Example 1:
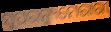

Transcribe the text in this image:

ସୁପରନ୍ୟୁମେରାରୀ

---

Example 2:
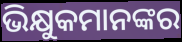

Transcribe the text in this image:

ଭିକ୍ଷୁକମାନଙ୍କର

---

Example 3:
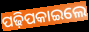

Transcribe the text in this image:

ପଢ଼ିପକାଇଲେ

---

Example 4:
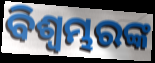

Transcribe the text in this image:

ବିଶ୍ୱମ୍ଭରଙ୍କ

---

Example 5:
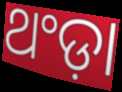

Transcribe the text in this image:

ଥଂଡ଼ା